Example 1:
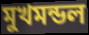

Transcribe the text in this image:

মুখমন্ডল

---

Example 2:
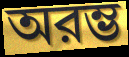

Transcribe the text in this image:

অরম্ভ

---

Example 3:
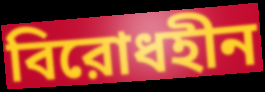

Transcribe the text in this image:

বিরোধহীন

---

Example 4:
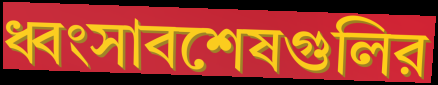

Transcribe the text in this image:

ধ্বংসাবশেষগুলির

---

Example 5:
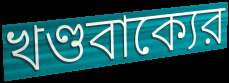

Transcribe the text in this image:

খণ্ডবাক্যের